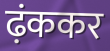
ढ़ंककर